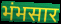
भंभसार